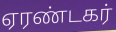
ஏரண்டகர்